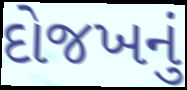
દોજખનું